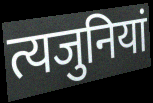
त्यजुनियां